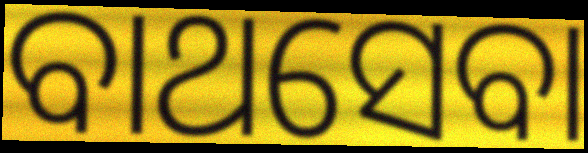
ବାଥସେବା